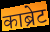
काब्रेट